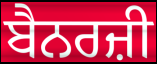
ਬੈਨਰਜ਼ੀ